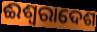
ଈଶ୍ୱରାଦେଶ